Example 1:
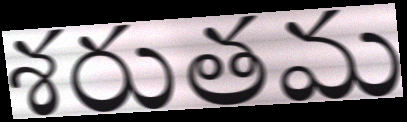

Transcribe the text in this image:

శరుతమ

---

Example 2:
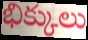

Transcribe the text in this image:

భిక్కులు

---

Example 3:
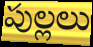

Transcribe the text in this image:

పుల్లలు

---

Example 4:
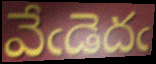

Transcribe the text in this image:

వేఁడెదఁ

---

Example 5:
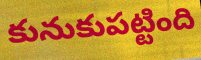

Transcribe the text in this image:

కునుకుపట్టింది